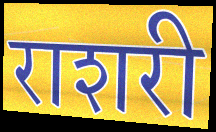
राशरी